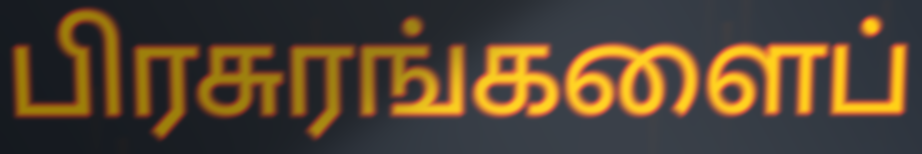
பிரசுரங்களைப்